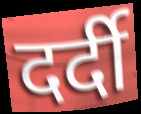
दर्दी